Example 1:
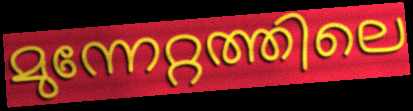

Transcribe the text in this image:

മുന്നേറ്റത്തിലെ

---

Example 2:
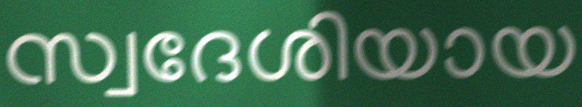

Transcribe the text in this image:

സ്വദേശിയായ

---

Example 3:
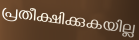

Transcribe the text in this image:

പ്രതീക്ഷിക്കുകയില്ല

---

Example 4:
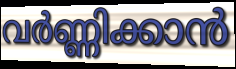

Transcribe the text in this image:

വർണ്ണിക്കാൻ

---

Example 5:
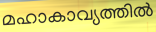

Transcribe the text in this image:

മഹാകാവ്യത്തിൽ